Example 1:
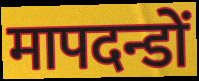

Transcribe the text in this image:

मापदन्डों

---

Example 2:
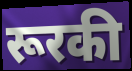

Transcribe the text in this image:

रूरकी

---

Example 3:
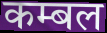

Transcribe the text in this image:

कम्बल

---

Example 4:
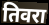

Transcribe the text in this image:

तिवरा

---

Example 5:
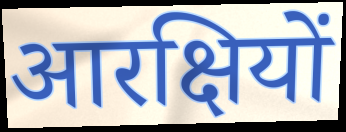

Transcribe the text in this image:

आरक्षियों